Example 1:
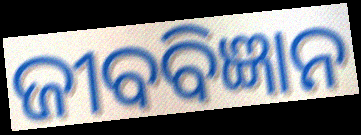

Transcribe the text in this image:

ଜୀବବିଜ୍ଞାନ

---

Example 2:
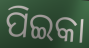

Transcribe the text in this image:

ପିଇକା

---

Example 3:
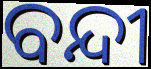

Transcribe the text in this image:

ବନ୍ଦୀ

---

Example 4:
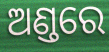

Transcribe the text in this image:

ଅଣ୍ଡରେ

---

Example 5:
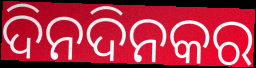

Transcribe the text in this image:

ଦିନଦିନକର